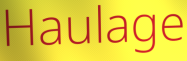
Haulage